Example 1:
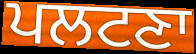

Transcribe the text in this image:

ਪਲਟਣਾ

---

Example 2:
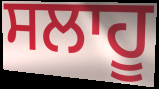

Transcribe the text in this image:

ਸਲਾਹੂ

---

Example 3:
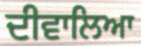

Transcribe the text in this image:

ਦੀਵਾਲਿਆ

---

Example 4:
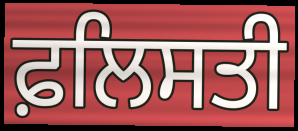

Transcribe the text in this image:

ਫ਼ਲਿਸਤੀ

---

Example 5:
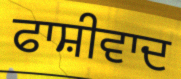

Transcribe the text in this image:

ਫਾਸ਼ੀਵਾਦ